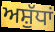
ਅਸ਼ੁੱਧਾਂ